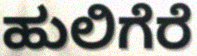
ಹುಲಿಗೆರೆ